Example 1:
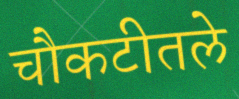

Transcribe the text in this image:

चौकटीतले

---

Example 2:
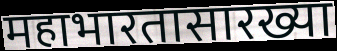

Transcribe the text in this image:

महाभारतासारख्या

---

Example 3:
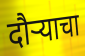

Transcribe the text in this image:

दौऱ्याचा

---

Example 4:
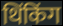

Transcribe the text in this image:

थिंकिंग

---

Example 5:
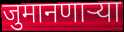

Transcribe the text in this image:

जुमानणार्‍या